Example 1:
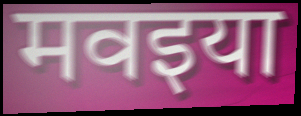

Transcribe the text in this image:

मवइया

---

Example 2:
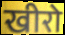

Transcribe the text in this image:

खीरो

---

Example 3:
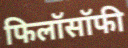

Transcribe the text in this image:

फिलॉसॉफी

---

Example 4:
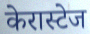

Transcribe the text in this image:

केरास्टेज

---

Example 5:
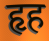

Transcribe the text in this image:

हृह